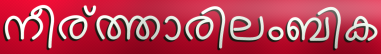
നീര്ത്താരിലംബിക